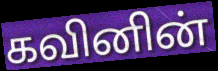
கவினின்